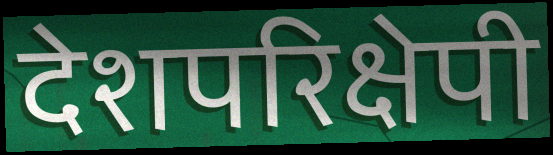
देशपरिक्षेपी